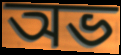
অভ